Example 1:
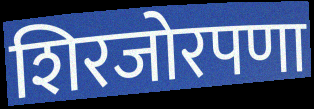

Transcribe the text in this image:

शिरजोरपणा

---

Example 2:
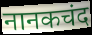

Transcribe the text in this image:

नानकचंद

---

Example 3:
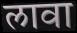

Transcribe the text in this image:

लावा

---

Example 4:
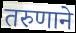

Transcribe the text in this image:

तरुणाने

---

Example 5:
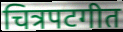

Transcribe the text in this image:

चित्रपटगीत